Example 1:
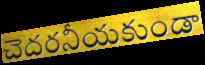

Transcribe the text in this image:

చెదరనీయకుండా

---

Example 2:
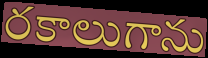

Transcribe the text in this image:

రకాలుగాను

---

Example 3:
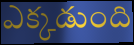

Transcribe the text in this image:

ఎక్కడుంది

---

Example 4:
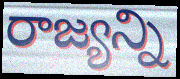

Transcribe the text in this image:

రాజ్యన్ని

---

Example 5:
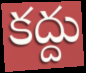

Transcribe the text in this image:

కద్దు